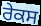
ਰੇਕਸ